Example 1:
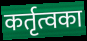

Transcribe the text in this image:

कर्तृत्वका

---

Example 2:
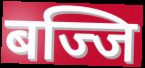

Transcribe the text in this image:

बज्जि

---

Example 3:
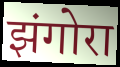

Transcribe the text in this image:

झंगोरा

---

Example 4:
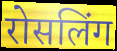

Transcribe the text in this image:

रोसलिंग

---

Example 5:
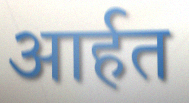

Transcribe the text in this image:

आर्हत